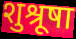
शुश्रूषा